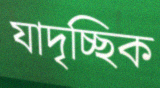
যাদৃচ্ছিক